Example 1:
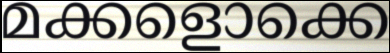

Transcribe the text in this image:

മക്കളൊക്കെ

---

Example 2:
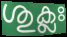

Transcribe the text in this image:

ശുക്ലഃ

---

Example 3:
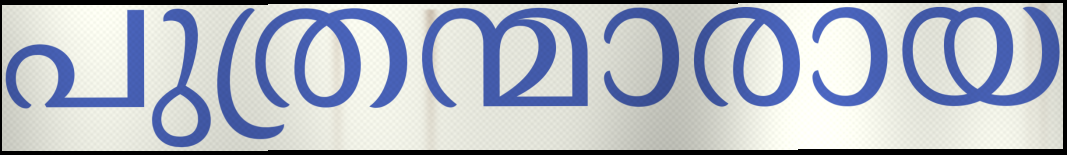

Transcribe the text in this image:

പുത്രന്മാരായ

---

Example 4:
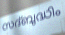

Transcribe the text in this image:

സദ്ബുദ്ധിം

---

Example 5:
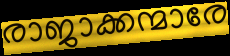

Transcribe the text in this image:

രാജാക്കന്മാരേ